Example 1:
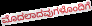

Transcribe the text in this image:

ಮೊದಲಾದವುಗಳೊಂದಿಗೆ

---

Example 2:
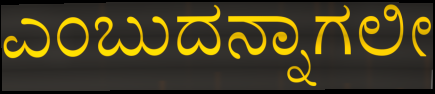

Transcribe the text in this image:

ಎಂಬುದನ್ನಾಗಲೀ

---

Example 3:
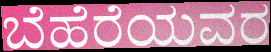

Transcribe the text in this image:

ಬೆಹೆರೆಯವರ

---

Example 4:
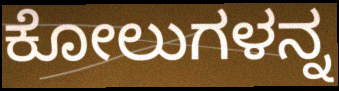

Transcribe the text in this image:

ಕೋಲುಗಳನ್ನ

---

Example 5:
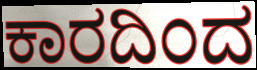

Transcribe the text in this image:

ಕಾರದಿಂದ